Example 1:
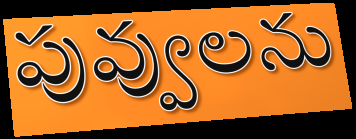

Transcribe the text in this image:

పువ్వులను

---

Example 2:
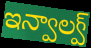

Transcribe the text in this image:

ఇన్వాల్వ్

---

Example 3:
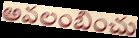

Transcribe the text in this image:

అవలంబించు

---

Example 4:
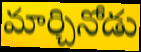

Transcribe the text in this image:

మార్చినోడు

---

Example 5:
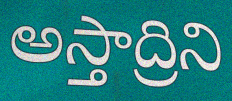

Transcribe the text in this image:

అస్తాద్రిని